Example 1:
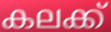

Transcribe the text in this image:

കലക്ക്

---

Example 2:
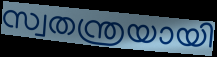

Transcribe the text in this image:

സ്വതന്ത്രയായി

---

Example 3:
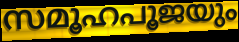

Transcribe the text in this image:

സമൂഹപൂജയും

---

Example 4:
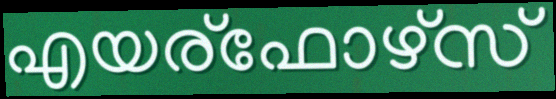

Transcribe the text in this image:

എയര്ഫോഴ്സ്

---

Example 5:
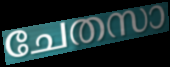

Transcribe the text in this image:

ചേതസാ